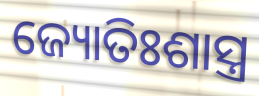
ଜ୍ୟୋତିଃଶାସ୍ତ୍ର